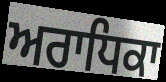
ਅਰਾਧਿਕਾ